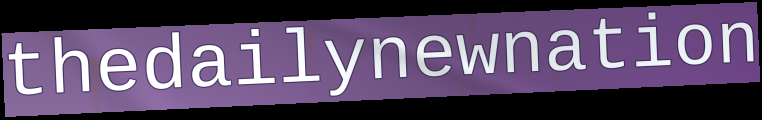
thedailynewnation